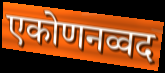
एकोणनव्वद